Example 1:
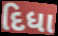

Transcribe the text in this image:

દિધા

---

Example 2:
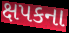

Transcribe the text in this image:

ક્ષપકના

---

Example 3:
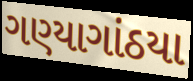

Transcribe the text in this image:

ગણ્યાગાંઠયા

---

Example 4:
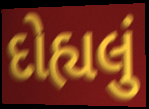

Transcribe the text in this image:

દોહ્યલું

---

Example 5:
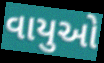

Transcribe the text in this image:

વાયુઓ